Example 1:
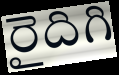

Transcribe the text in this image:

రైదిగి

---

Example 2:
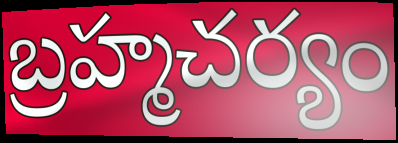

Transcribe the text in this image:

బ్రహ్మచర్యం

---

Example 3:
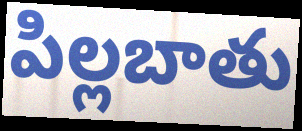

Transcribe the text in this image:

పిల్లబాతు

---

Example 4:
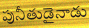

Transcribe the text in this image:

పునీతుడైనాడు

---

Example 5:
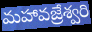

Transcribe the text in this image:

మహావజ్రేశ్వరి